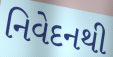
નિવેદનથી